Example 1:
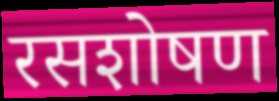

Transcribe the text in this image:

रसशोषण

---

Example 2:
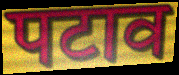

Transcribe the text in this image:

पटाव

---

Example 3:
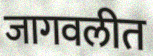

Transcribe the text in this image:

जागवलीत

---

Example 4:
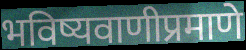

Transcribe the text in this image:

भविष्यवाणीप्रमाणे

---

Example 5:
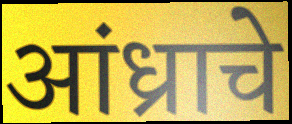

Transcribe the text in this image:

आंध्राचे